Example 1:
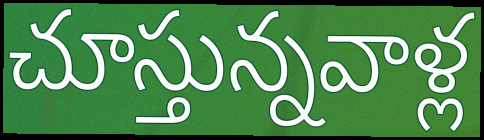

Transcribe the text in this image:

చూస్తున్నవాళ్ల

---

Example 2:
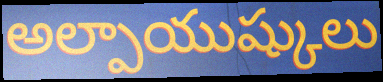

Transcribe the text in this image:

అల్పాయుష్కులు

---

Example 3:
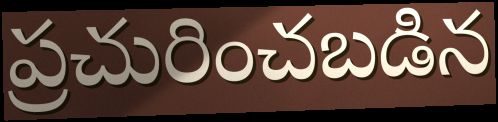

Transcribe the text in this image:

ప్రచురించబడిన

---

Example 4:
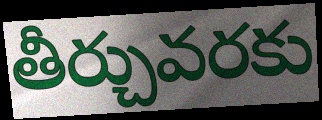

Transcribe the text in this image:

తీర్చువరకు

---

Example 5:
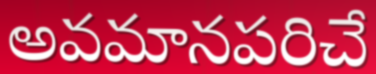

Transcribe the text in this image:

అవమానపరిచే